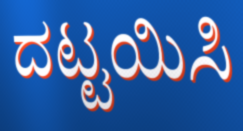
ದಟ್ಟಯಿಸಿ